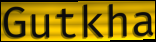
Gutkha